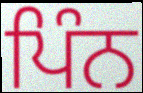
ਪਿੰਨ